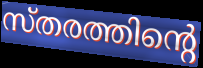
സ്തരത്തിന്റെ